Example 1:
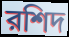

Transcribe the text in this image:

রশিদ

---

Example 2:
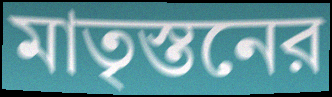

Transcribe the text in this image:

মাতৃস্তনের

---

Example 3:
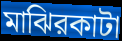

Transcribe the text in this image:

মাঝিরকাটা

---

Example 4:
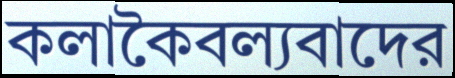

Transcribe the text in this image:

কলাকৈবল্যবাদের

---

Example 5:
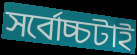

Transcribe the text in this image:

সর্বোচ্চটাই